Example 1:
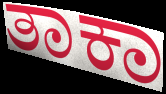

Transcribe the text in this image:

ತಾಕಾ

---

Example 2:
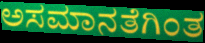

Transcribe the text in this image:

ಅಸಮಾನತೆಗಿಂತ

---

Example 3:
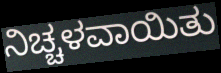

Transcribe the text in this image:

ನಿಚ್ಚಳವಾಯಿತು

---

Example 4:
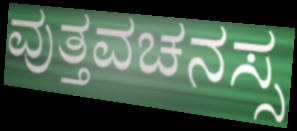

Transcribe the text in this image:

ವುತ್ತವಚನಸ್ಸ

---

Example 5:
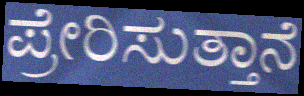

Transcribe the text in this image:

ಪ್ರೇರಿಸುತ್ತಾನೆ